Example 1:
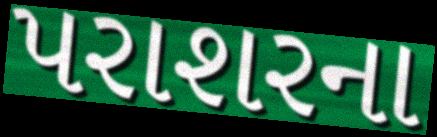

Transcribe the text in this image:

પરાશરના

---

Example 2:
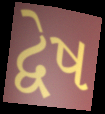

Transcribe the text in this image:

દ્વેષ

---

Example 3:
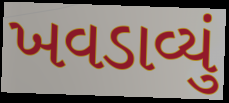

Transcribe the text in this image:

ખવડાવ્યું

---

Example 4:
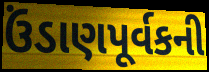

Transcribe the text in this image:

ઉંડાણપૂર્વકની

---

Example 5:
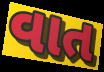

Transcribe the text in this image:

વાત